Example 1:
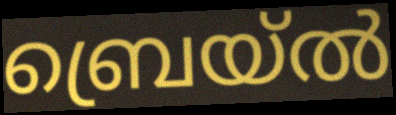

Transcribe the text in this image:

ബ്രെയ്ൽ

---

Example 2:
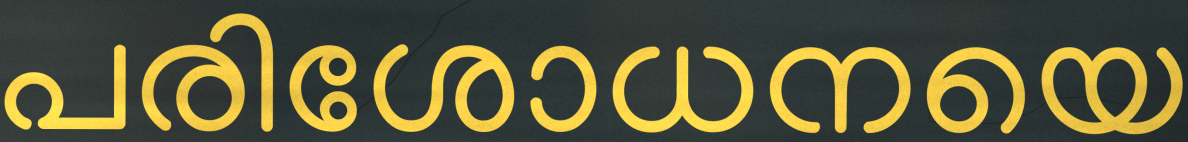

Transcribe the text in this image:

പരിശോധനയെ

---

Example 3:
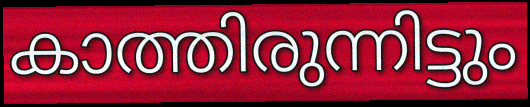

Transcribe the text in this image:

കാത്തിരുന്നിട്ടും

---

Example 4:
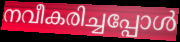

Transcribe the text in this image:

നവീകരിച്ചപ്പോൾ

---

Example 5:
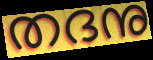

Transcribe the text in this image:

തദനു